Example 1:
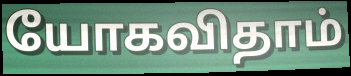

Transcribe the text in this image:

யோகவிதாம்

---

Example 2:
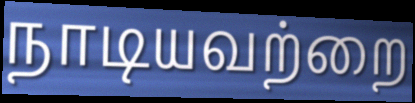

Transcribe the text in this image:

நாடியவற்றை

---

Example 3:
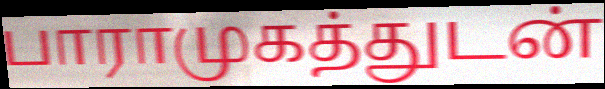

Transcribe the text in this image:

பாராமுகத்துடன்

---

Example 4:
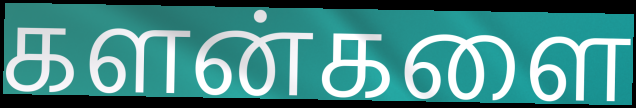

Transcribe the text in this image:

களன்களை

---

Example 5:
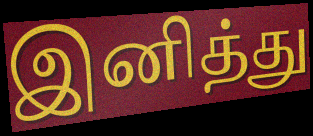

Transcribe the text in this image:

இனித்து